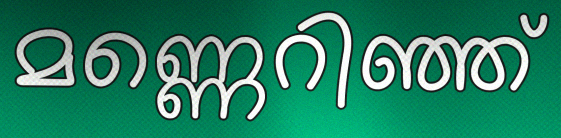
മണ്ണെറിഞ്ഞ്